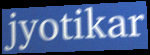
jyotikar